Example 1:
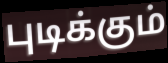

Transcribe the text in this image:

புடிக்கும்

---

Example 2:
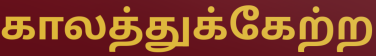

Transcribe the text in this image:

காலத்துக்கேற்ற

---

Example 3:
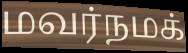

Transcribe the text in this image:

மவர்நமக்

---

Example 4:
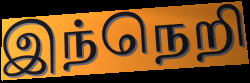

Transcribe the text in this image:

இந்நெறி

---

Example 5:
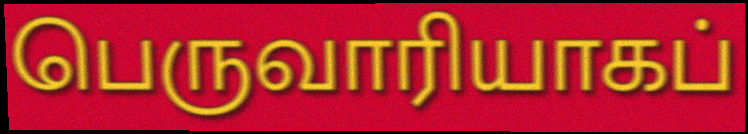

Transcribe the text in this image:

பெருவாரியாகப்